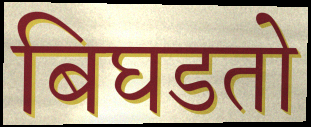
बिघडतो